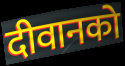
दीवानको